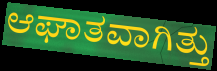
ಆಘಾತವಾಗಿತ್ತು